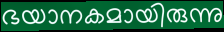
ഭയാനകമായിരുന്നു